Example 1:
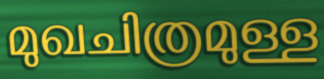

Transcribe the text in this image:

മുഖചിത്രമുള്ള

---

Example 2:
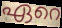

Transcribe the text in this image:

ഏറെ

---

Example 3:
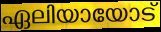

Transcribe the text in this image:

ഏലിയായോട്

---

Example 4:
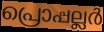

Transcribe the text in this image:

പ്രൊപ്പല്ലർ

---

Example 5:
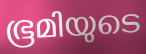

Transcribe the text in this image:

ഭൂമിയുടെ